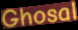
Ghosal